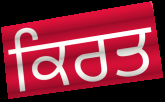
ਕਿਰਤ